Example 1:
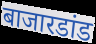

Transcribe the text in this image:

बाजारडांड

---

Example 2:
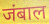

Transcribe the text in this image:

जंबाल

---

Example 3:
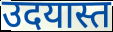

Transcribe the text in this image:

उदयास्त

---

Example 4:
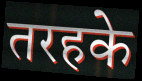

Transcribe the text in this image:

तरहके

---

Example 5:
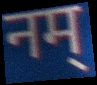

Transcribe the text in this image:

नम्